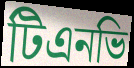
টিএনভি